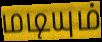
மடியும்